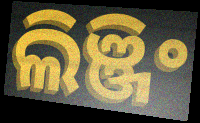
ଲିଞ୍ଜିଂ